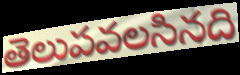
తెలుపవలసినది